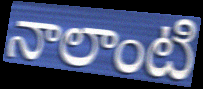
నాలాంటి